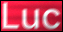
Luc